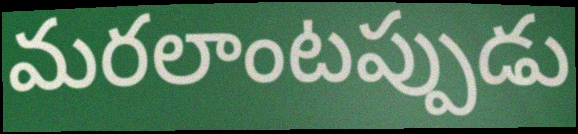
మరలాంటప్పుడు